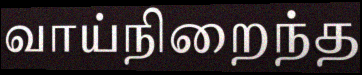
வாய்நிறைந்த